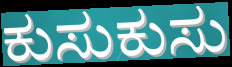
ಕುಸುಕುಸು